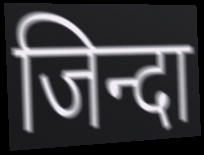
जिन्दा